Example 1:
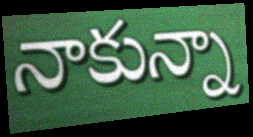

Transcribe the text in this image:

నాకున్నా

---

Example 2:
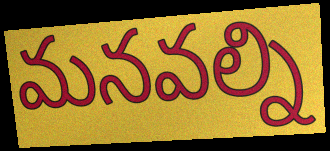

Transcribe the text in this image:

మనవల్ని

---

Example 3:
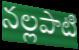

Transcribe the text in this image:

నల్లపాటి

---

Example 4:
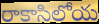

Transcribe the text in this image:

రాకాసిలోయ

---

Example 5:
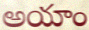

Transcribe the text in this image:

అయాం